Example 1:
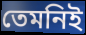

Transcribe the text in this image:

তেমনিই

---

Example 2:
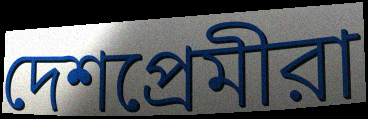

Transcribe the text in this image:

দেশপ্রেমীরা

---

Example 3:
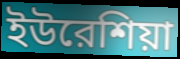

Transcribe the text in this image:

ইউরেশিয়া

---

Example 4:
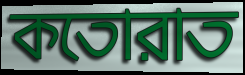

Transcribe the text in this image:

কতোরাত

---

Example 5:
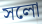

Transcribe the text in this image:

সলো